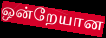
ஒன்றேயான